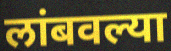
लांबवल्या